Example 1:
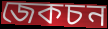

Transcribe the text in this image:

জেকচন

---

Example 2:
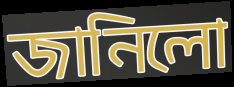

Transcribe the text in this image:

জানিলো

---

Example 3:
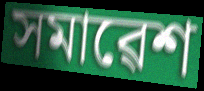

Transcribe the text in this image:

সমাৱেশ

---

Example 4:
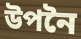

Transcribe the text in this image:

উপনৈ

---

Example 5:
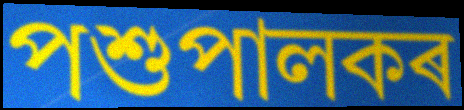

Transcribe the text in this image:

পশুপালকৰ